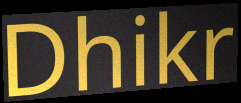
Dhikr